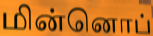
மின்னொப்